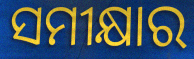
ସମୀକ୍ଷାର